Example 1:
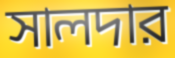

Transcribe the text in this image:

সালদার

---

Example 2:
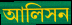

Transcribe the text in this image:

আলিসন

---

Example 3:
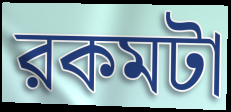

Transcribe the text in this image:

রকমটা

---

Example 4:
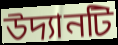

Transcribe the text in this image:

উদ্যানটি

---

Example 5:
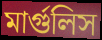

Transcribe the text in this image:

মার্গুলিস